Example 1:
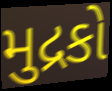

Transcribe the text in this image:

મુદ્રકો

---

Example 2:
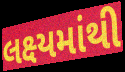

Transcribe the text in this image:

લક્ષ્યમાંથી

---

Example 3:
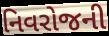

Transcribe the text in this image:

નિવરોજની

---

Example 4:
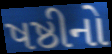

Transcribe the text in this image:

ષષ્ઠીનો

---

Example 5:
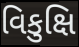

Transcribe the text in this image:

વિકુક્ષિ